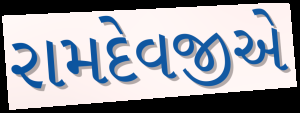
રામદેવજીએ